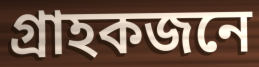
গ্ৰাহকজনে